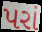
પરાં